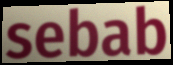
sebab